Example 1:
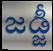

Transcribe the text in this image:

జడ్జీ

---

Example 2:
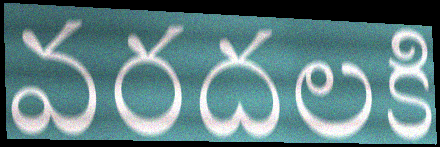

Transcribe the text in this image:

వరదలకి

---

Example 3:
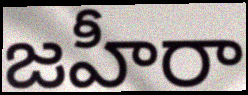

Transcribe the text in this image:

జహీరా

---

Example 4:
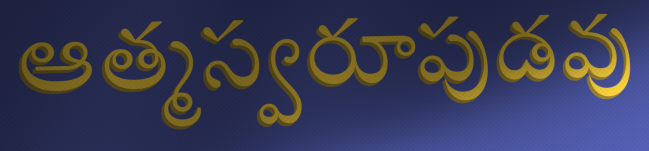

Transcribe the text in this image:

ఆత్మస్వరూపుడవు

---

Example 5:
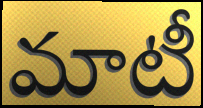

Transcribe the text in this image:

మాటీ